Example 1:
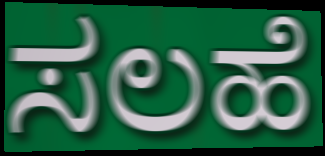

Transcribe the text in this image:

ಸಲಹೆ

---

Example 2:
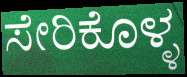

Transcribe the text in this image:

ಸೇರಿಕೊಳ್ಳ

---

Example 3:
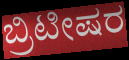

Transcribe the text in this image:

ಬ್ರಿಟೀಷರ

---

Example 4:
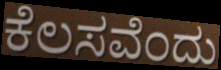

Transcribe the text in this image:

ಕೆಲಸವೆಂದು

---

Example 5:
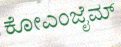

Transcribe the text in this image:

ಕೋಎಂಜೈಮ್